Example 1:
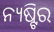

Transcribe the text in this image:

ନ୍ୟଷ୍ଟିର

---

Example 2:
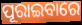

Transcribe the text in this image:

ପୂରାଇବାରେ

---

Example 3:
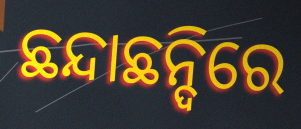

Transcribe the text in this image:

ଛନ୍ଦାଛନ୍ଦିରେ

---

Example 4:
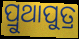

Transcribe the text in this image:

ପ୍ରୁଥାପୁତ୍ର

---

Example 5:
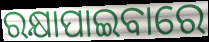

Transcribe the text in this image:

ରକ୍ଷାପାଇବାରେ